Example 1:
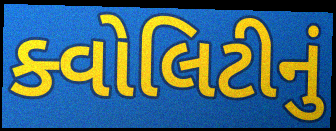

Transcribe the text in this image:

ક્વોલિટીનું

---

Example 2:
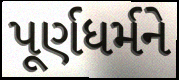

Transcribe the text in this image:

પૂર્ણધર્મને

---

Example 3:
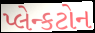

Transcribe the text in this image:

પ્લેન્કટોન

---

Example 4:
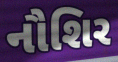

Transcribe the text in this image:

નૌશિર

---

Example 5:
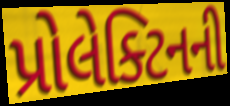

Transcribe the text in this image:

પ્રોલેક્ટિનની